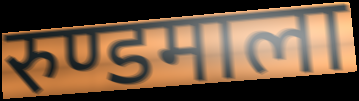
रुण्डमाला